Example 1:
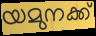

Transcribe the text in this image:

യമുനക്ക്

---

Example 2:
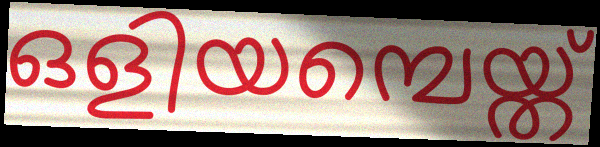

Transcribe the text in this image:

ഒളിയമ്പെയ്ത്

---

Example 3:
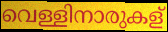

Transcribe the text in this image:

വെള്ളിനാരുകള്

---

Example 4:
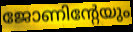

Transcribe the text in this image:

ജോണിന്റേയും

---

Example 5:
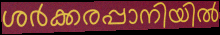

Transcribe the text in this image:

ശർക്കരപ്പാനിയിൽ